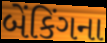
બેંકિંગના